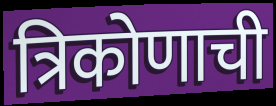
त्रिकोणाची